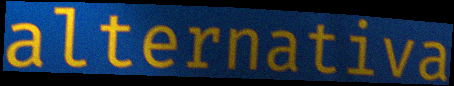
alternativa